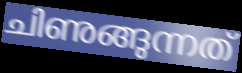
ചിണുങ്ങുന്നത്